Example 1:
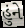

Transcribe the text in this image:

હુંને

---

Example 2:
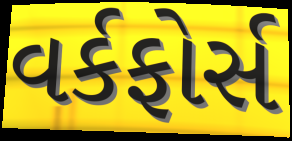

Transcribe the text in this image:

વર્કફોર્સ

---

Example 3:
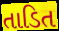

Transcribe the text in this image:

તાડિત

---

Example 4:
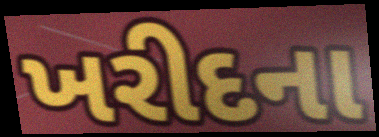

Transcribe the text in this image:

ખરીદના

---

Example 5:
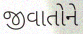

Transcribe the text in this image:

જીવાતોને